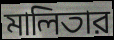
মালিতার